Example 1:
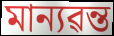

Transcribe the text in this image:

মান্যৱন্ত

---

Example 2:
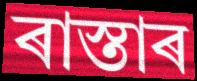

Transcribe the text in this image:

ৰাস্তাৰ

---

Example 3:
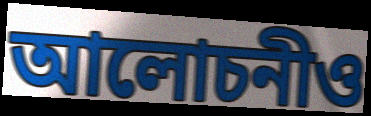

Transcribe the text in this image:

আলোচনীও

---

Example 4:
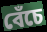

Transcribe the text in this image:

বেঁচে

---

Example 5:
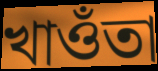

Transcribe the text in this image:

খাওঁতা